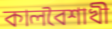
কালবৈশাখী